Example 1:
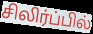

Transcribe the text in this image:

சிலிர்ப்பில்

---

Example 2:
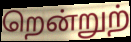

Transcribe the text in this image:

றென்றுற்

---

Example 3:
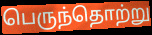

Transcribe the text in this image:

பெருந்தொற்று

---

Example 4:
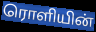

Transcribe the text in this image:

ரொளியின்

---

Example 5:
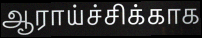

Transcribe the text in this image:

ஆராய்ச்சிக்காக